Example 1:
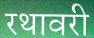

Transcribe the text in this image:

रथावरी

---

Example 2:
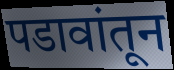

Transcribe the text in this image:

पडावांतून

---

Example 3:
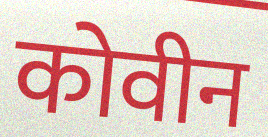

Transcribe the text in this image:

कोवीन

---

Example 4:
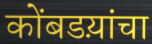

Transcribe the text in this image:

कोंबडय़ांचा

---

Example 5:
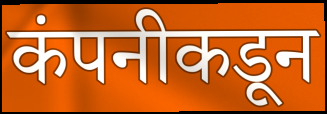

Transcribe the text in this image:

कंपनीकडून